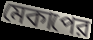
মেকাপের